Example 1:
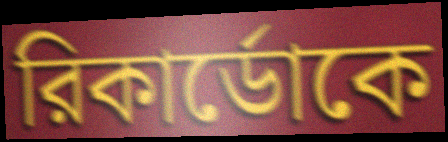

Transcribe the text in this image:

রিকার্ডোকে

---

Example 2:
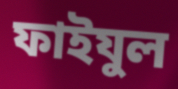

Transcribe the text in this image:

ফাইযুল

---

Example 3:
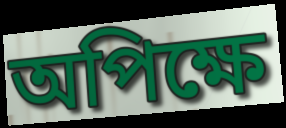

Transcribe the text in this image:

অপিক্ষে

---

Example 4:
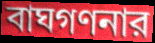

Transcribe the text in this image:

বাঘগণনার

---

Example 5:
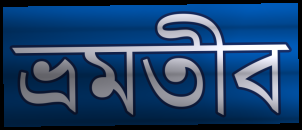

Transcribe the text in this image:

ভ্রমতীব